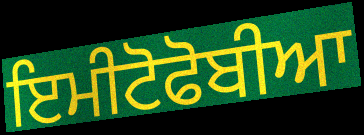
ਇਮੀਟੋਫੋਬੀਆ